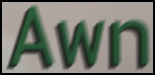
Awn